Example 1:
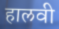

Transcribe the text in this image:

हालवी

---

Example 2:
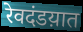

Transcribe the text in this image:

रेवदंडय़ात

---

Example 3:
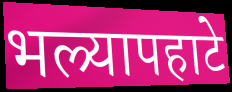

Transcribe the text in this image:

भल्यापहाटे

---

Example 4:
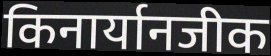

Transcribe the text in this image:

किनार्यानजीक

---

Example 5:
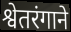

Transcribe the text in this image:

श्वेतरंगाने